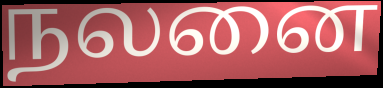
நலனை